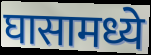
घासामध्ये